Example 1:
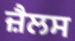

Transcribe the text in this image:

ਜ਼ੈਲਸ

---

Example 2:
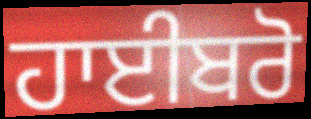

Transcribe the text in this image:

ਹਾਈਬਰੋ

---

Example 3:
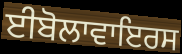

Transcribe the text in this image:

ਈਬੋਲਾਵਾਇਰਸ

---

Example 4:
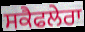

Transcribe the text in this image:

ਸਕੈਫਲੇਰਾ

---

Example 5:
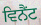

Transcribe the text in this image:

ਵਿਨੈਂਟ